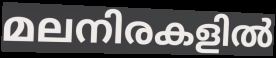
മലനിരകളിൽ